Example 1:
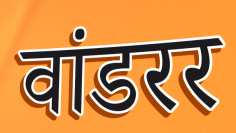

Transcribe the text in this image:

वांडरर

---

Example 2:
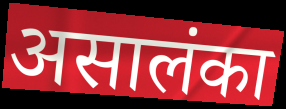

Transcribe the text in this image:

असालंका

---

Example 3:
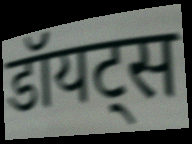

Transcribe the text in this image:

डॉयट्स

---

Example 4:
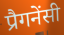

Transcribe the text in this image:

प्रैगनेंसी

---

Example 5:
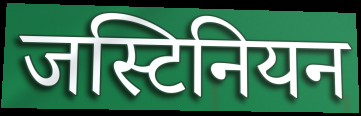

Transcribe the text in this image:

जस्टिनियन